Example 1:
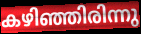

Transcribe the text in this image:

കഴിഞ്ഞിരിന്നു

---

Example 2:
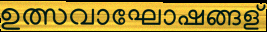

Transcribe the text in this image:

ഉത്സവാഘോഷങ്ങള്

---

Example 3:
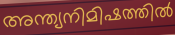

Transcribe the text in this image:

അന്ത്യനിമിഷത്തിൽ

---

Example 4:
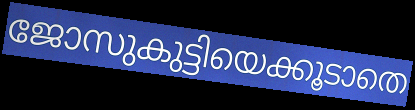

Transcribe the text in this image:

ജോസുകുട്ടിയെക്കൂടാതെ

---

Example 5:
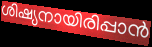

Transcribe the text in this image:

ശിഷ്യനായിരിപ്പാൻ